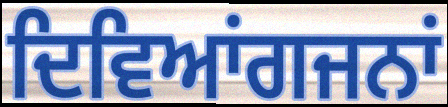
ਦਿਵਿਆਂਗਜਨਾਂ